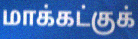
மாக்கட்குக்